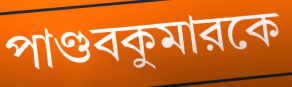
পাণ্ডবকুমারকে